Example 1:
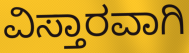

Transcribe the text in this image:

ವಿಸ್ತಾರವಾಗಿ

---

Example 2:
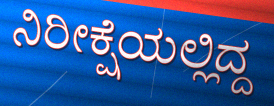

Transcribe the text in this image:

ನಿರೀಕ್ಷೆಯಲ್ಲಿದ್ದ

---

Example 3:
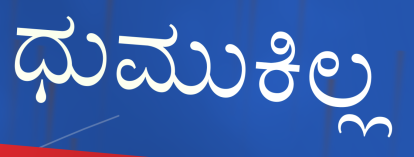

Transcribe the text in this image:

ಧುಮುಕಿಲ್ಲ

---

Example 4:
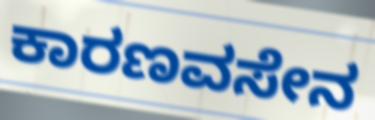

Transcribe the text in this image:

ಕಾರಣವಸೇನ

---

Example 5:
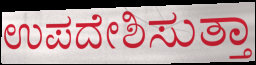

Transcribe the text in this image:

ಉಪದೇಶಿಸುತ್ತಾ